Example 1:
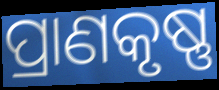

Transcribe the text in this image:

ପ୍ରାଣକୃଷ୍ଣ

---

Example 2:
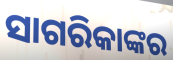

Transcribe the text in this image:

ସାଗରିକାଙ୍କର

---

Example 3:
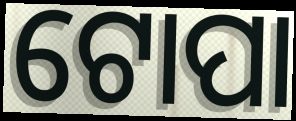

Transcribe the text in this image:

ଟୋପା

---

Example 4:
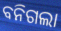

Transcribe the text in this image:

ବନିଗଲା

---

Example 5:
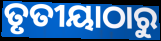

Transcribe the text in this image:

ତୃତୀୟାଠାରୁ